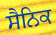
ਸੈਨਿਕ